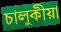
চালুকীয়া